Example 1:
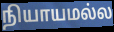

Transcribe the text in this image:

நியாயமல்ல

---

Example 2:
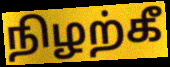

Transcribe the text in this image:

நிழற்கீ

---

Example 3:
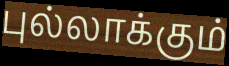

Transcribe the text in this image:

புல்லாக்கும்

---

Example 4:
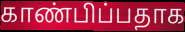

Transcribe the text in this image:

காண்பிப்பதாக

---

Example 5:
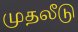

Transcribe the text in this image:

முதலீடு